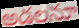
అడలనూ